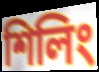
শিলিং